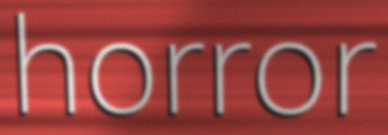
horror